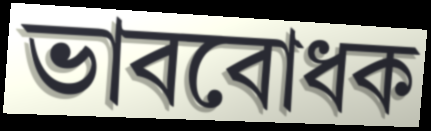
ভাববোধক